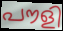
പൗളി